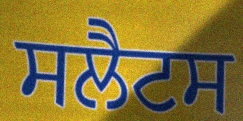
ਸਲੈਟਸ